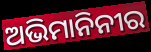
ଅଭିମାନିନୀର